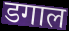
डगाल